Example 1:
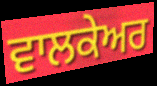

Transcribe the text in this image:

ਵਾਲਕੇਅਰ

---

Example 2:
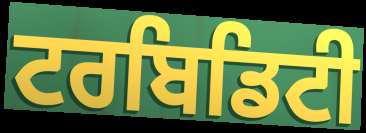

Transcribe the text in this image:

ਟਰਬਿਡਿਟੀ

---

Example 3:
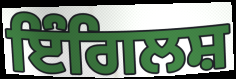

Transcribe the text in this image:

ਇੰਗਿਲਸ਼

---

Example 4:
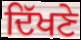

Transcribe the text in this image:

ਦਿੱਖਣੇ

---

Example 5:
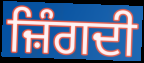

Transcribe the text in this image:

ਜ਼ਿੰਗਦੀ